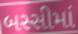
બસ્સીમાં